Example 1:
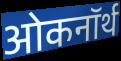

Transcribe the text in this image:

ओकनॉर्थ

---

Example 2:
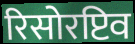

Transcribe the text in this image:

रिसोरप्टिव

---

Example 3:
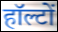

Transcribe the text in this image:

हॉल्टों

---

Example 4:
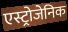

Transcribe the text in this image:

एस्ट्रोजेनिक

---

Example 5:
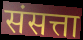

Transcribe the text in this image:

संसत्ता